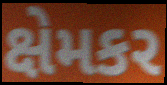
ક્ષેમકર